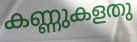
കണ്ണുകളതു